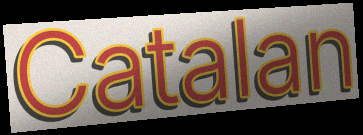
Catalan